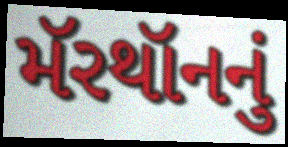
મૅરથૉનનું